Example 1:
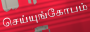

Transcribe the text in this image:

செய்யுங்கோபம்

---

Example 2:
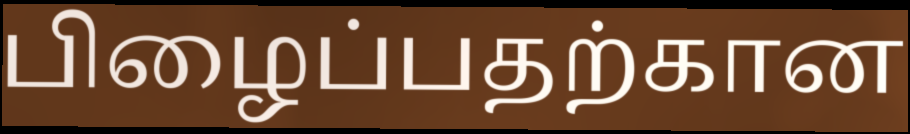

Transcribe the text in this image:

பிழைப்பதற்கான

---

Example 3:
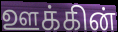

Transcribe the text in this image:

ஊக்கின்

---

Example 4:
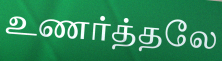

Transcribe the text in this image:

உணர்த்தலே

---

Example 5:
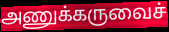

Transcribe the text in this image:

அணுக்கருவைச்